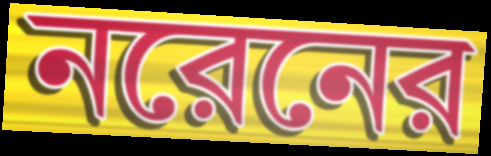
নরেনের